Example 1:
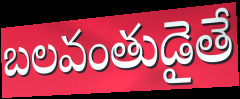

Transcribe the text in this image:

బలవంతుడైతే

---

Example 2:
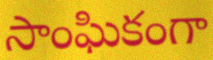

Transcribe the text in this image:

సాంఘికంగా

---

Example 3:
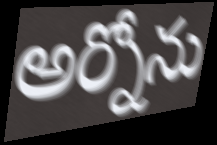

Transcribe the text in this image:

అర్నోను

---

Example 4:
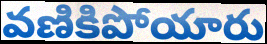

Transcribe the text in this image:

వణికిపోయారు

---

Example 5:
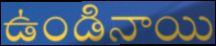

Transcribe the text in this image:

ఉండినాయి